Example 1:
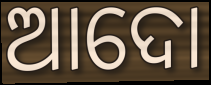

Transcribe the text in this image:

ଆଦୋ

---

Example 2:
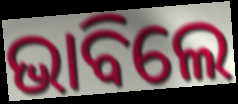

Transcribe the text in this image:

ଭାବିଲେ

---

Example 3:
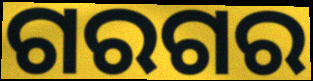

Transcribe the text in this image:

ଗରଗର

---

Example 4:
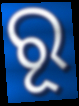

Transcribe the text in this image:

ରୂ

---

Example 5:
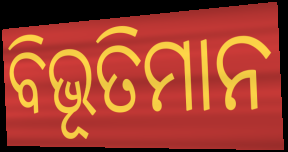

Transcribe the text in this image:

ବିଭୂତିମାନ